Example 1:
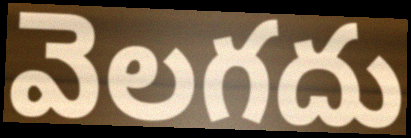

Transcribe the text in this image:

వెలగదు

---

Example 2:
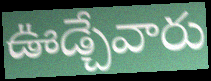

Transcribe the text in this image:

ఊడ్చేవారు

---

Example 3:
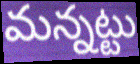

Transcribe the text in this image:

మన్నట్టు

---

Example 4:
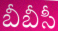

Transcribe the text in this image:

బీబీసీ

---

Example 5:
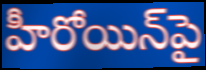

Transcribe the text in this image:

హీరోయిన్‌పై